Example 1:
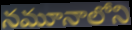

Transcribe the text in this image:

నమూనాలోని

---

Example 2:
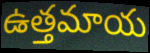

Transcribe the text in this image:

ఉత్తమాయ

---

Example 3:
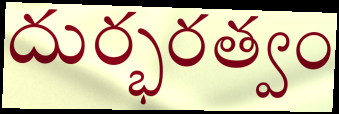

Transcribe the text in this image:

దుర్భరత్వం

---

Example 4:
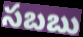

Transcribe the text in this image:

సబబు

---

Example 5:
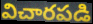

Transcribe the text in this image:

విచారపడి